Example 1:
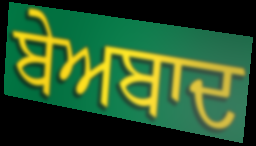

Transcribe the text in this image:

ਬੇਅਬਾਦ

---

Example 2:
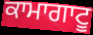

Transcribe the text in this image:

ਕਾਮਾਗਾਟੂ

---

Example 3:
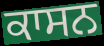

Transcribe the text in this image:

ਕਾਸਨ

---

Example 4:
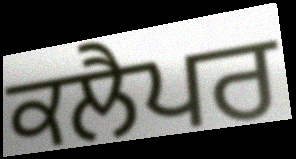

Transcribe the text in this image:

ਕਲੈਪਰ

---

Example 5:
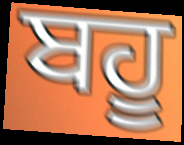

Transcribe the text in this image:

ਬਹੂ